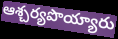
ఆశ్చర్యపొయ్యారు